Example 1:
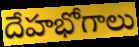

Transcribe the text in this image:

దేహభోగాలు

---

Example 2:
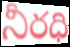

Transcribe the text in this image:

నీరధి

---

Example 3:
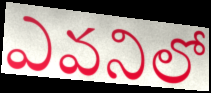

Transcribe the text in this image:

ఎవనిలో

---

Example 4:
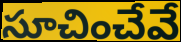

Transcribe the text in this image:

సూచించేవే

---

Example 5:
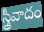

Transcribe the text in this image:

స్త్రీవాదం